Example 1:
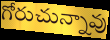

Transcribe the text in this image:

గోరుచున్నావు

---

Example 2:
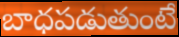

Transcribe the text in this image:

బాధపడుతుంటే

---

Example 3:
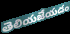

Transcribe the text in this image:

తెలియజేయడం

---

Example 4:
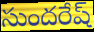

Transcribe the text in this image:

సుందరేష్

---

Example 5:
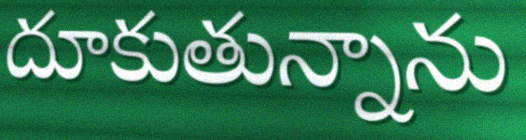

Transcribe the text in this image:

దూకుతున్నాను